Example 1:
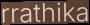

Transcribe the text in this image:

rrathika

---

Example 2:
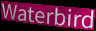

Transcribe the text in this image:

Waterbird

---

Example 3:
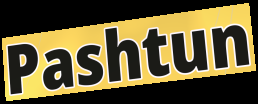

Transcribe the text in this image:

Pashtun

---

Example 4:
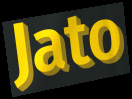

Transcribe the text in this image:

Jato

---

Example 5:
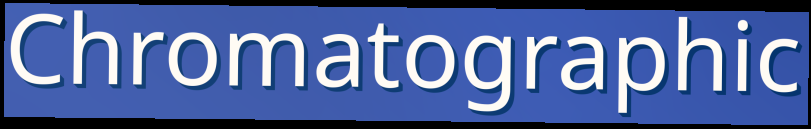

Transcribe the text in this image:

Chromatographic